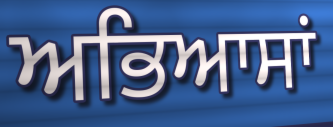
ਅਭਿਆਸਾਂ